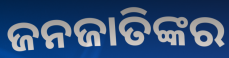
ଜନଜାତିଙ୍କର